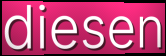
diesen